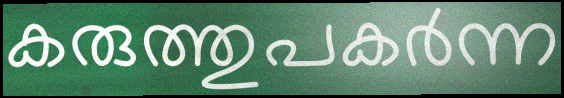
കരുത്തുപകർന്ന